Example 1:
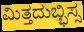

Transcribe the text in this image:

ಮಿತ್ತದುಬ್ಭಿಸ್ಸ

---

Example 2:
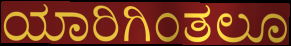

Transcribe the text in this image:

ಯಾರಿಗಿಂತಲೂ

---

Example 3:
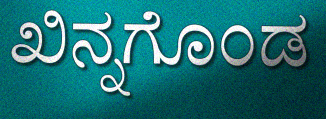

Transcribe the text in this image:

ಖಿನ್ನಗೊಂಡ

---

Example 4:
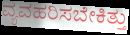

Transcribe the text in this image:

ವ್ಯವಹರಿಸಬೇಕಿತ್ತು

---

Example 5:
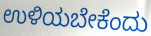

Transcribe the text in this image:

ಉಳಿಯಬೇಕೆಂದು